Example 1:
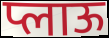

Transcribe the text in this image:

प्लाऊ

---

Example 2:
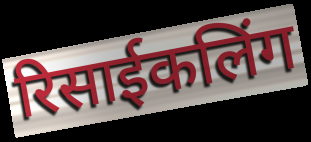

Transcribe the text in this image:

रिसाईकलिंग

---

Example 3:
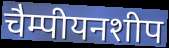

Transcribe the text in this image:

चैम्पीयनशीप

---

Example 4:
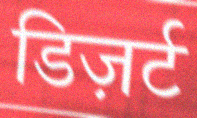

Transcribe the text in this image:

डिज़र्ट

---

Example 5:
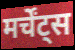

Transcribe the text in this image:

मर्चेंट्स